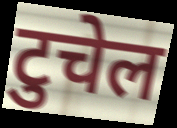
टुचेल